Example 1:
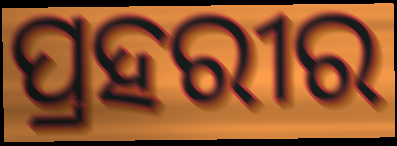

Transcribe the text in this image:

ପ୍ରହରୀର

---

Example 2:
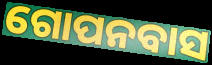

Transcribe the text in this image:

ଗୋପନବାସ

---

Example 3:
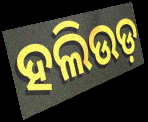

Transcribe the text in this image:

ହଲିଉଡ଼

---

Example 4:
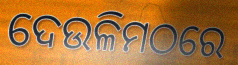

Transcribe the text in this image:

ଦେଉଳିମଠରେ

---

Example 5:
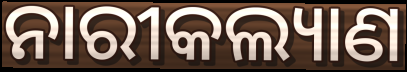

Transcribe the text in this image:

ନାରୀକଲ୍ୟାଣ